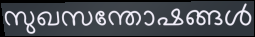
സുഖസന്തോഷങ്ങൾ